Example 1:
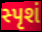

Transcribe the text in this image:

સ્પૃશં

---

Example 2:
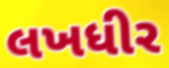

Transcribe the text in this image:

લખધીર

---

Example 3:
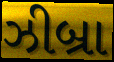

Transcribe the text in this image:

ઝીબ્રા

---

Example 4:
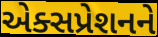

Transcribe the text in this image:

એક્સપ્રેશનને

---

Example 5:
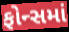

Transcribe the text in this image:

ફોન્સમાં